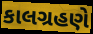
કાલગ્રહણે